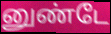
னுண்டே